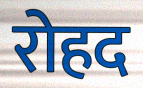
रोहद